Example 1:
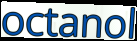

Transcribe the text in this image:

octanol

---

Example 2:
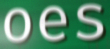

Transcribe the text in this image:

oes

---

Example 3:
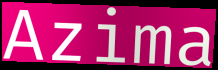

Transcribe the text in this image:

Azima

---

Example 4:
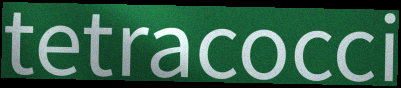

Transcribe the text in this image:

tetracocci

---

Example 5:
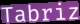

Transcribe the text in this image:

Tabriz